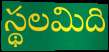
స్థలమిది